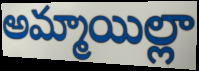
అమ్మాయిల్లా